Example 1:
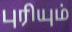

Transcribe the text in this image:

புரியும்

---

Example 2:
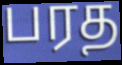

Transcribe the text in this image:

பரத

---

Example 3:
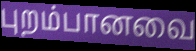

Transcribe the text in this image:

புறம்பானவை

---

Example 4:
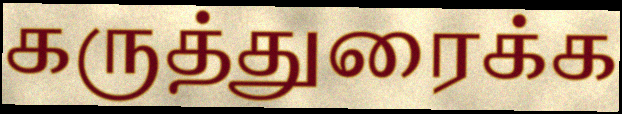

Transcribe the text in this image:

கருத்துரைக்க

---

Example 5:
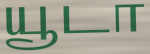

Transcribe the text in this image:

யூடா